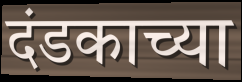
दंडकाच्या